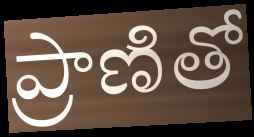
ప్రాణితో